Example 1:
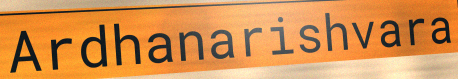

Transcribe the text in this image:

Ardhanarishvara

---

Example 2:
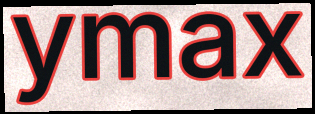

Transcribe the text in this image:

ymax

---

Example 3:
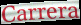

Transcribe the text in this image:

Carrera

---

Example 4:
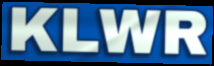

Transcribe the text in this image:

KLWR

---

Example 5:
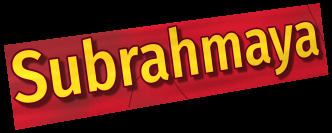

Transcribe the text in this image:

Subrahmaya